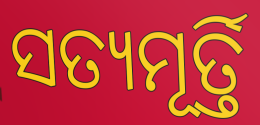
ସତ୍ୟମୂର୍ତ୍ତି